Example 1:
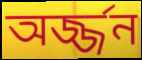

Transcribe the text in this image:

অর্জ্জন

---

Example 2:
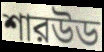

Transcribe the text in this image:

শারউড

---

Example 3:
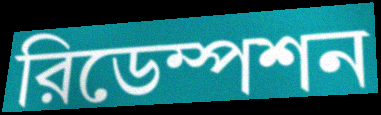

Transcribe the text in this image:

রিডেম্পশন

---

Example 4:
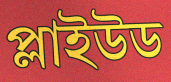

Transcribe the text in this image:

প্লাইউড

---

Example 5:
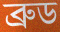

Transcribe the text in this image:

ব্রুড